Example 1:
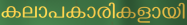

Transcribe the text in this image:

കലാപകാരികളായി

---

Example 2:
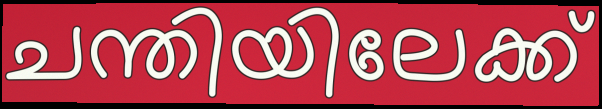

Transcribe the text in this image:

ചന്തിയിലേക്ക്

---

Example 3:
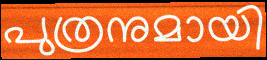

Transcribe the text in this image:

പുത്രനുമായി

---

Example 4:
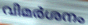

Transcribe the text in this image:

വിമർശനം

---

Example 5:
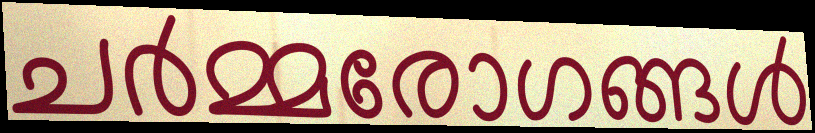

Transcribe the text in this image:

ചർമ്മരോഗങ്ങൾ